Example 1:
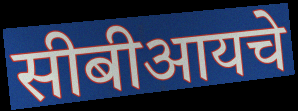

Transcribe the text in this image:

सीबीआयचे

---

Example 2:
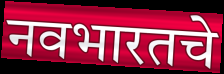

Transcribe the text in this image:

नवभारतचे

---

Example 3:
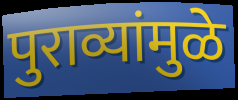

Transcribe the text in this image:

पुराव्यांमुळे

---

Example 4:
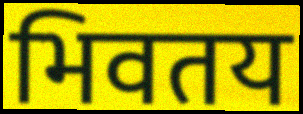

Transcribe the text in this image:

भिवतय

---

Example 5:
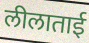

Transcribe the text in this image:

लीलाताई